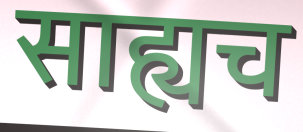
साह्यच